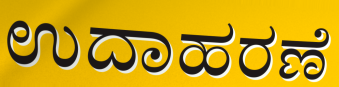
ಉದಾಹರಣೆ